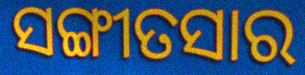
ସଙ୍ଗୀତସାର